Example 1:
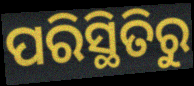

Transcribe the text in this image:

ପରିସ୍ଥିତିରୁ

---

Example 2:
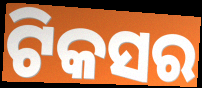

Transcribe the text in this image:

ଟିକସର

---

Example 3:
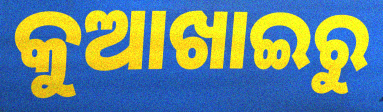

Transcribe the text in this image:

କୁଆଖାଇରୁ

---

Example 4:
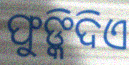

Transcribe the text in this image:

ଫୁଙ୍କିଦିଏ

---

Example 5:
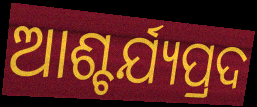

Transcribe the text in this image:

ଆଶ୍ଚର୍ଯ୍ୟପ୍ରଦ